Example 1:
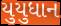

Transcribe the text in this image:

યુયુધાન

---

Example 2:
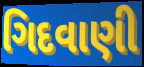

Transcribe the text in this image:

ગિદવાણી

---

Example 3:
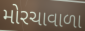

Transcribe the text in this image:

મોરચાવાળા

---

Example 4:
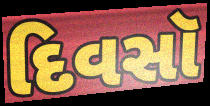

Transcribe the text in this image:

દિવસૉ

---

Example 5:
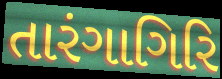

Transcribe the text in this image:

તારંગાગિરિ